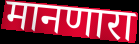
मानणारा